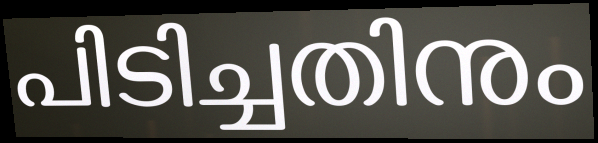
പിടിച്ചതിനും